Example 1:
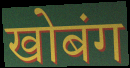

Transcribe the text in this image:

खोबंग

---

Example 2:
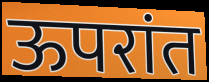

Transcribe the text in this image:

ऊपरांत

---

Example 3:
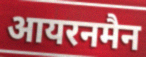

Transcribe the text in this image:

आयरनमैन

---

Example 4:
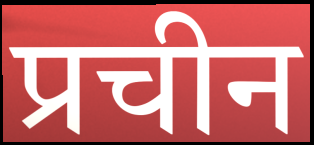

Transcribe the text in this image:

प्रचीन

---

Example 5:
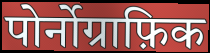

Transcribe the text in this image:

पोर्नोग्राफ़िक